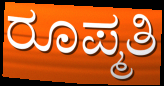
ರೂಪ್ಮತಿ